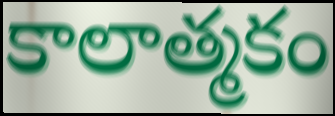
కాలాత్మకం